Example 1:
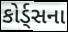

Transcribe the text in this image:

કોર્ડ્સના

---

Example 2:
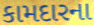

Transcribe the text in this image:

કામદારના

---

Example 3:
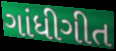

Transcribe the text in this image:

ગાંધીગીત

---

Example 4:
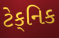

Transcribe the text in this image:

ટેક્‌નિક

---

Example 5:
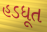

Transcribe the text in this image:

હડધૂત